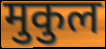
मुकुल